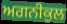
ਅਗਨੀਕੁਲ